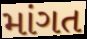
માંગત